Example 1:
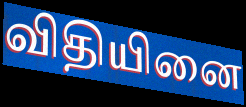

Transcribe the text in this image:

விதியினை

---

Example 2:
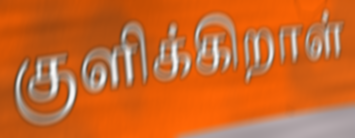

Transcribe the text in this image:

குளிக்கிறாள்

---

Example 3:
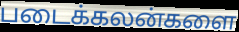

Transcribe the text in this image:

படைக்கலன்களை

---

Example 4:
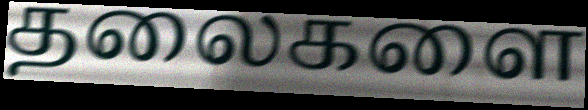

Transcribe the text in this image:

தலைகளை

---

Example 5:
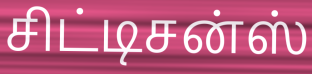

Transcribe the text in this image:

சிட்டிசன்ஸ்